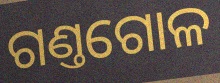
ଗଣ୍ତଗୋଳ